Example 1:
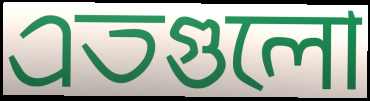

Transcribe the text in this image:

এতগুলো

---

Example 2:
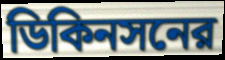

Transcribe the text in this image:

ডিকিনসনের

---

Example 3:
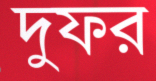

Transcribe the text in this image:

দুফর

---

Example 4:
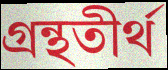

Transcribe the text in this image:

গ্রন্থতীর্থ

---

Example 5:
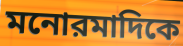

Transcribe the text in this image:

মনোরমাদিকে